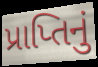
પ્રાપ્તિનું